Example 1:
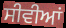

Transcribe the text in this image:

ਸੀਵੀਆਂ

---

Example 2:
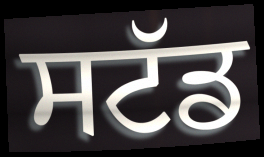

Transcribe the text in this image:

ਸਟੱਡ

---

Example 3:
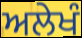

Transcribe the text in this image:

ਅਲੇਖੰ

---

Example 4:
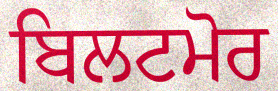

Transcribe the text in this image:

ਬਿਲਟਮੋਰ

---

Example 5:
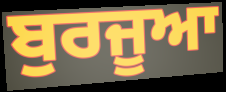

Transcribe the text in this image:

ਬੁਰਜੂਆ